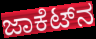
ಜಾಕೆಟ್‌ನ